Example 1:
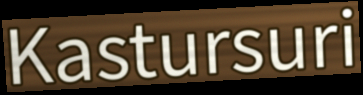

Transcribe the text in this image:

Kastursuri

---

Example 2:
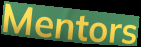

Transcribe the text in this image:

Mentors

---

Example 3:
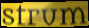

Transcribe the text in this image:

strum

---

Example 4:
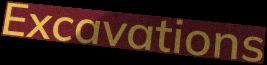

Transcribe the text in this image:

Excavations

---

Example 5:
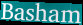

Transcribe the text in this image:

Basham